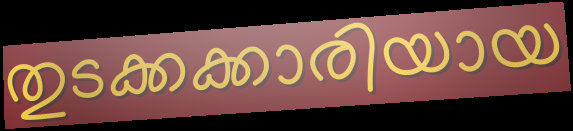
തുടക്കക്കാരിയായ